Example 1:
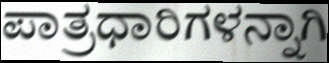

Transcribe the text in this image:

ಪಾತ್ರಧಾರಿಗಳನ್ನಾಗಿ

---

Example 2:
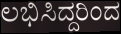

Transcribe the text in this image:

ಲಭಿಸಿದ್ದರಿಂದ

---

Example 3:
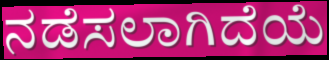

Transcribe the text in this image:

ನಡೆಸಲಾಗಿದೆಯೆ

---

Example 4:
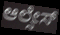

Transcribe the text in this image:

ಆಲ್ಸೇಸ್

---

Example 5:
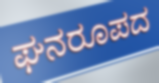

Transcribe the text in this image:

ಘನರೂಪದ